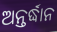
ଅନ୍ତର୍ଦ୍ଧାନ